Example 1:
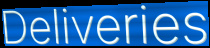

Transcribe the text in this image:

Deliveries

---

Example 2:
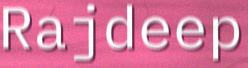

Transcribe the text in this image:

Rajdeep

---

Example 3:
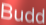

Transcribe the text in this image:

Budd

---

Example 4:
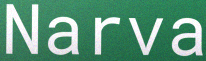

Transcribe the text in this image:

Narva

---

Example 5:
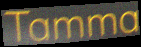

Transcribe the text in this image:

Tamma